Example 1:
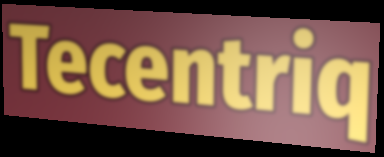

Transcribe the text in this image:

Tecentriq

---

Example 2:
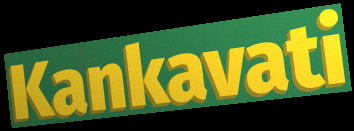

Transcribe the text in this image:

Kankavati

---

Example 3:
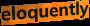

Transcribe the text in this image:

eloquently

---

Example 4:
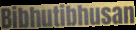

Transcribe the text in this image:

Bibhutibhusan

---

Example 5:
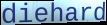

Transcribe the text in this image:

diehard